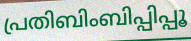
പ്രതിബിംബിപ്പിപ്പൂ